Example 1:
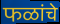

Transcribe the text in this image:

फळांचे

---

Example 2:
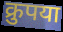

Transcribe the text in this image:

क्रुपया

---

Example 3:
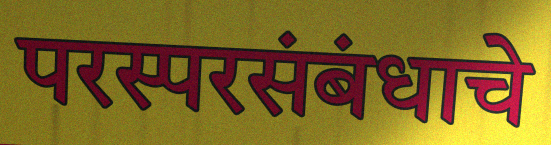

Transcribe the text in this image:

परस्परसंबंधाचे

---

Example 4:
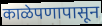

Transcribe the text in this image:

काळेपणापासून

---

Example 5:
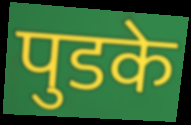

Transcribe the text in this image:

पुडके